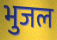
भुजल